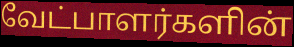
வேட்பாளர்களின்